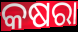
କଷରା